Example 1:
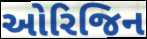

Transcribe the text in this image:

ઓરિજિન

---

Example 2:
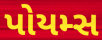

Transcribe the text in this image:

પોયમ્સ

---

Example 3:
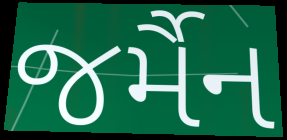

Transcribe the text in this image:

જર્મૈન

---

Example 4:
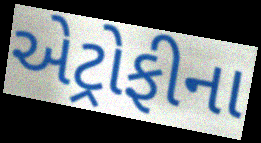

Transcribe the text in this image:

એટ્રોફીના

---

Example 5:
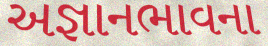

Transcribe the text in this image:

અજ્ઞાનભાવના